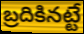
బ్రదికినట్టే